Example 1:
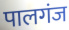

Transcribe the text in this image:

पालगंज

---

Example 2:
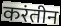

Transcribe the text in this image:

करंतीन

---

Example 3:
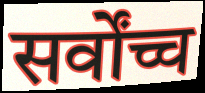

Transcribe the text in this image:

सर्वोंच्च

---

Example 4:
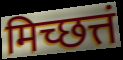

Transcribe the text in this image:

मिच्छत्तं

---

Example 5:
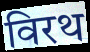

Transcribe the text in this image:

विरथ